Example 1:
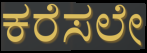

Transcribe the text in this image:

ಕರೆಸಲೇ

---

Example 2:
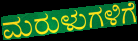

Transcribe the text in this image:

ಮರುಳುಗಳಿಗೆ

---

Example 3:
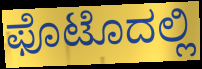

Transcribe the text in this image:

ಫೊಟೊದಲ್ಲಿ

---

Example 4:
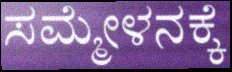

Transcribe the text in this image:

ಸಮ್ಮೇಳನಕ್ಕೆ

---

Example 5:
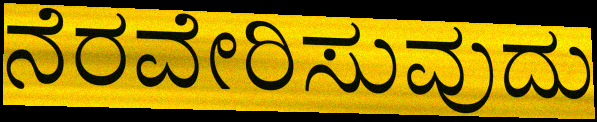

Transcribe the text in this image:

ನೆರವೇರಿಸುವುದು